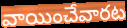
వాయించేవారట